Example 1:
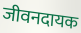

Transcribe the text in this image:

जीवनदायक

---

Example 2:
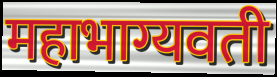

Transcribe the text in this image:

महाभाग्यवती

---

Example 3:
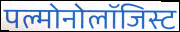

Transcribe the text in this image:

पल्मोनोलॉजिस्ट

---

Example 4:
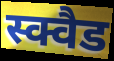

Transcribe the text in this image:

स्क्वैड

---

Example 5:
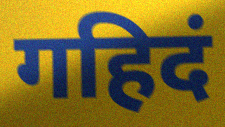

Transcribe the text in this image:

गहिदं